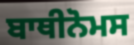
ਬਾਥੀਨੋਮਸ